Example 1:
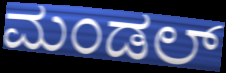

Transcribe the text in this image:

ಮಂಡಲ್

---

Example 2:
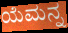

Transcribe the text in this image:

ಯೆಮನ್ನ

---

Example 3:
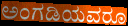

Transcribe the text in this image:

ಅಂಗಡಿಯವರೂ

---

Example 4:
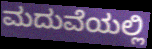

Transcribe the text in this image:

ಮದುವೆಯಲ್ಲಿ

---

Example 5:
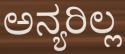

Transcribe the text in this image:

ಅನ್ಯರಿಲ್ಲ